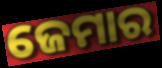
ଜେମାର